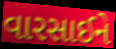
વારસાઈને